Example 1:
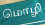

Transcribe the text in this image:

மொழி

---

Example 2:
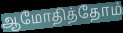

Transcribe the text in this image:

ஆமோதித்தோம்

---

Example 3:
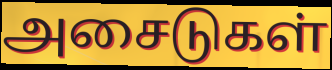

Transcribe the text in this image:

அசைடுகள்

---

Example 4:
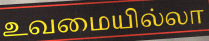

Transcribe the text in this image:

உவமையில்லா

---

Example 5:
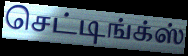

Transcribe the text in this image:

செட்டிங்க்ஸ்